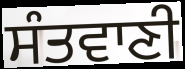
ਸੰਤਵਾਣੀ